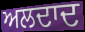
ਅਲਦਾਦ